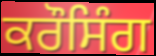
ਕਰੌਸਿੰਗ